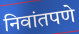
निवांतपणे